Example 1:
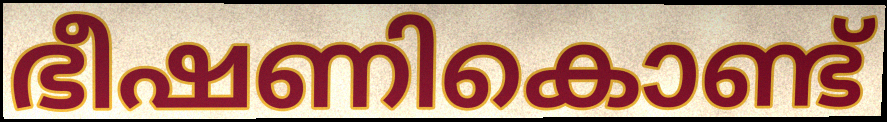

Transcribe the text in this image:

ഭീഷണികൊണ്ട്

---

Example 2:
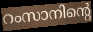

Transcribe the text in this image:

റംസാനിന്റെ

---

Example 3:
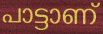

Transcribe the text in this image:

പാട്ടാണ്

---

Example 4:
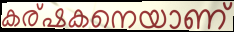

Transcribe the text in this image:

കര്ഷകനെയാണ്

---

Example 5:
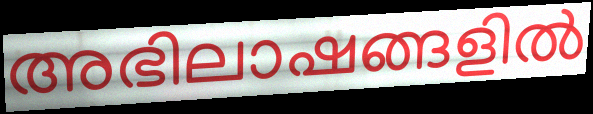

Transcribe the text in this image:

അഭിലാഷങ്ങളിൽ